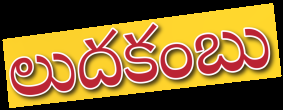
లుదకంబు